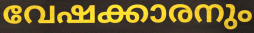
വേഷക്കാരനും